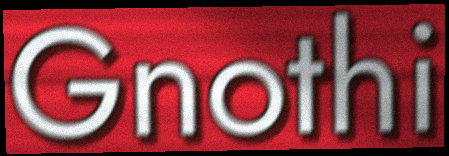
Gnothi